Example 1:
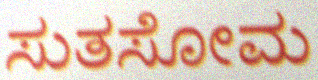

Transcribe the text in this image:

ಸುತಸೋಮ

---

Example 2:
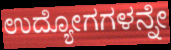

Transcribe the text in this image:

ಉದ್ಯೋಗಗಳನ್ನೇ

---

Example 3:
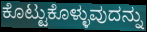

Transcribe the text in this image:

ಕೊಟ್ಟುಕೊಳ್ಳುವುದನ್ನು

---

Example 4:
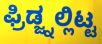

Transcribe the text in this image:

ಫ್ರಿಡ್ಜ್ನಲ್ಲಿಟ್ಟ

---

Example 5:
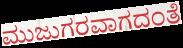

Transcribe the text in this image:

ಮುಜುಗರವಾಗದಂತೆ